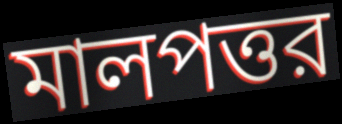
মালপত্তর